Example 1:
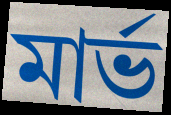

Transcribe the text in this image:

মার্ভ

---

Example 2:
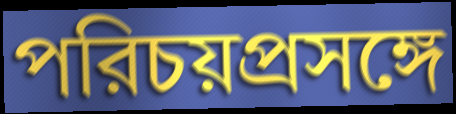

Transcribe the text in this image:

পরিচয়প্রসঙ্গে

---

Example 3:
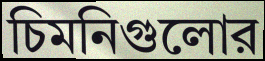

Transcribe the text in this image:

চিমনিগুলোর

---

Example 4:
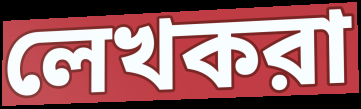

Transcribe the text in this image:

লেখকরা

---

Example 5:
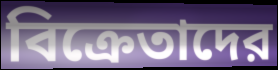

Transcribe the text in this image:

বিক্রেতাদের